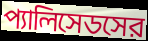
প্যালিসেডসের